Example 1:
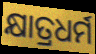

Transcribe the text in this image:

କ୍ଷାତ୍ରଧର୍ମ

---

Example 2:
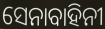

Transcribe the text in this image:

ସେନାବାହିନୀ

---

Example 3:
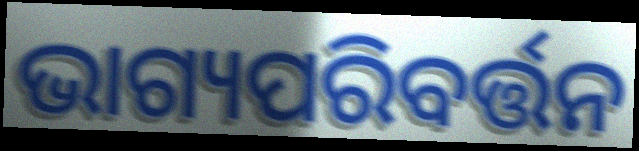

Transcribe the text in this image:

ଭାଗ୍ୟପରିବର୍ତ୍ତନ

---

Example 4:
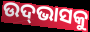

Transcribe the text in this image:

ଉଦ୍‌ଭାସକୁ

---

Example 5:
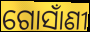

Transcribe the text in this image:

ଗୋସାଁଣୀ